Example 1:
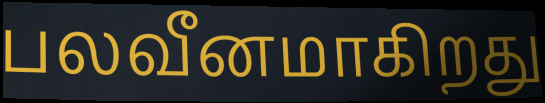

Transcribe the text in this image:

பலவீனமாகிறது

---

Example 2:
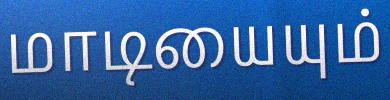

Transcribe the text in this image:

மாடியையும்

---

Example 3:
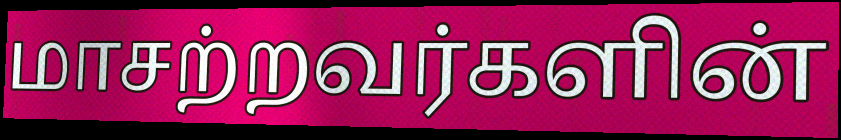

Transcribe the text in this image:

மாசற்றவர்களின்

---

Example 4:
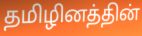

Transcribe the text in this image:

தமிழினத்தின்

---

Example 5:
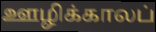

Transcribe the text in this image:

ஊழிக்காலப்